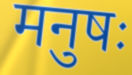
मनुषः